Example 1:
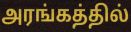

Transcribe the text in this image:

அரங்கத்தில்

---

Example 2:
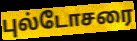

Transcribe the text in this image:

புல்டோசரை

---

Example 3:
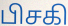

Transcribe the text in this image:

பிசகி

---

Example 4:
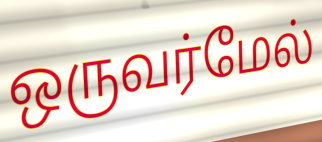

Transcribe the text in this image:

ஒருவர்மேல்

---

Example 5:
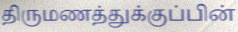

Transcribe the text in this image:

திருமணத்துக்குப்பின்